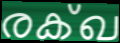
രക്ഖ